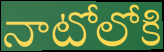
నాటోలోకి